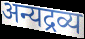
अन्यद्रव्य